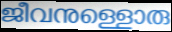
ജീവനുള്ളൊരു